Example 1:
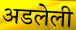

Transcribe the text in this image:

अडलेली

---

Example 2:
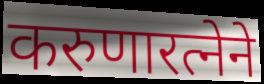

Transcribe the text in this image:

करुणारत्नेने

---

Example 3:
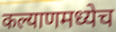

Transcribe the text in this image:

कल्याणमध्येच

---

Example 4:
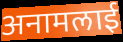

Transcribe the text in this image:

अनामलाई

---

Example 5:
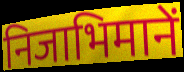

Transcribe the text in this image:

निजाभिमानें